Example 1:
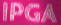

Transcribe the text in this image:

IPGA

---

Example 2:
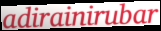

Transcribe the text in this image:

adirainirubar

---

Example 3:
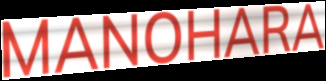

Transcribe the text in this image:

MANOHARA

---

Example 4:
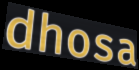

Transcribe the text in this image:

dhosa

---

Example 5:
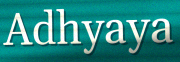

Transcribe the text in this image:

Adhyaya